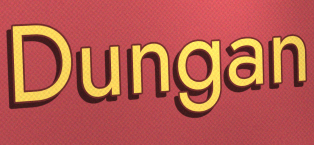
Dungan